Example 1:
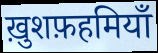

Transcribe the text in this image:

ख़ुशफ़हमियाँ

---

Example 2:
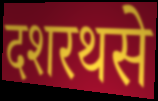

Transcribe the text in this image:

दशरथसे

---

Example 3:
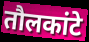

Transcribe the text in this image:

तौलकांटे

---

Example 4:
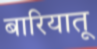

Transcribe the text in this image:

बारियातू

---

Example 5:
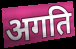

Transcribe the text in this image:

अगति